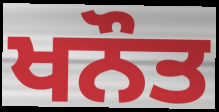
ਖਨੌਤ